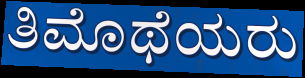
ತಿಮೊಥೆಯರು